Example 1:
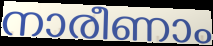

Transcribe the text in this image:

നാരീണാം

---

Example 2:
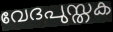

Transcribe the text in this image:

വേദപുസ്തക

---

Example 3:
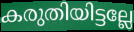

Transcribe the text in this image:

കരുതിയിട്ടല്ലേ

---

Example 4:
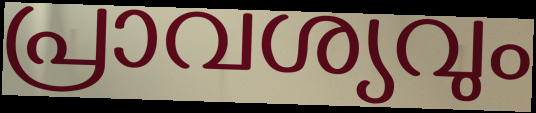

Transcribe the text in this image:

പ്രാവശ്യവും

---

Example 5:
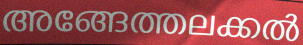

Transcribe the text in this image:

അങ്ങേത്തലക്കൽ